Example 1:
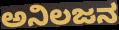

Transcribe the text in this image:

ಅನಿಲಜನ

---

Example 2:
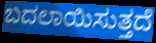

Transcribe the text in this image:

ಬದಲಾಯಿಸುತ್ತದೆ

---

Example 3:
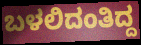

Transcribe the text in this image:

ಬಳಲಿದಂತಿದ್ದ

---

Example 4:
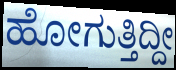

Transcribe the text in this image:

ಹೋಗುತ್ತಿದ್ದೀ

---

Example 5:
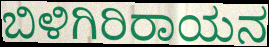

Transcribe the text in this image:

ಬಿಳಿಗಿರಿರಾಯನ